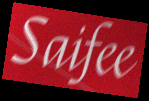
Saifee